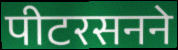
पीटरसनने